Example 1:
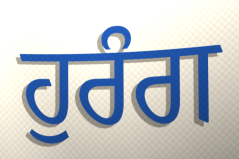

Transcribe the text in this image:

ਹੁਰੰਗ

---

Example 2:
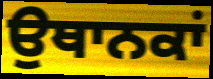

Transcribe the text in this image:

ਉਥਾਨਕਾਂ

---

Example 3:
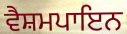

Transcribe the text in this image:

ਵੈਸ਼ਮਪਾਇਨ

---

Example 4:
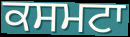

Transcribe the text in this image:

ਕਸਮਟਾ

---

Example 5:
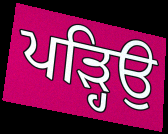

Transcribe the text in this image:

ਪੜ੍ਹਿਉ